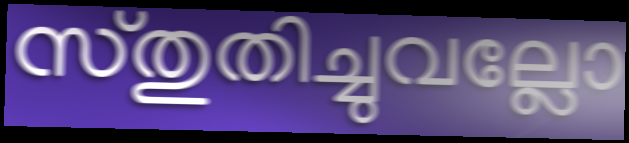
സ്തുതിച്ചുവല്ലോ